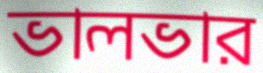
ভালভার